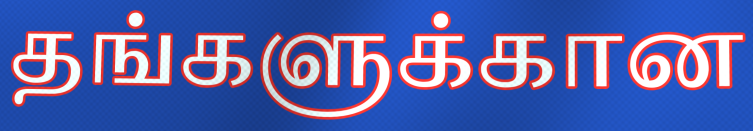
தங்களுக்கான